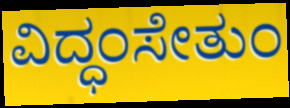
ವಿದ್ಧಂಸೇತುಂ